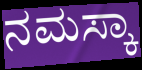
ನಮಸ್ಕಾ